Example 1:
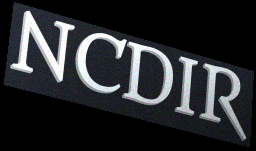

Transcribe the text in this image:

NCDIR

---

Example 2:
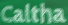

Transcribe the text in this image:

Caltha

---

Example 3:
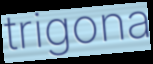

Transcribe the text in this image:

trigona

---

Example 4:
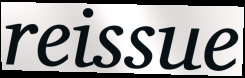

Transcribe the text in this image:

reissue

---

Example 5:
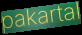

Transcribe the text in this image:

pakartal